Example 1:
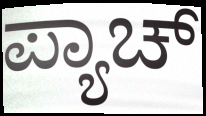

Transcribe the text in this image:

ಪ್ಯಾಚ್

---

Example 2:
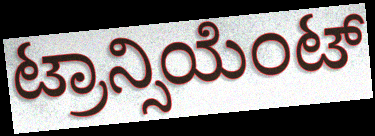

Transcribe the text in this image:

ಟ್ರಾನ್ಸಿಯೆಂಟ್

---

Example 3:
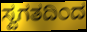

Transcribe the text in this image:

ಸ್ವಗತದಿಂದ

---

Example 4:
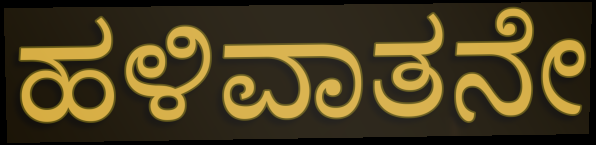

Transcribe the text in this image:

ಹಳಿವಾತನೇ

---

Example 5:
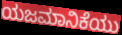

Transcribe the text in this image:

ಯಜಮಾನಿಕೆಯು